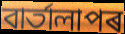
বাৰ্তালাপৰ